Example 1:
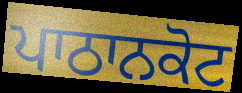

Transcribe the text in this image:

ਪਾਠਾਨਕੋਟ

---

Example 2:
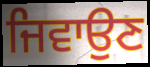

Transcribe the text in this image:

ਜਿਵਾਉਣ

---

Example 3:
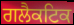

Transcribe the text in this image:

ਗਲੈਕਟਿਕ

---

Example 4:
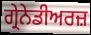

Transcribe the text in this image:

ਗ੍ਰੇਨੇਡੀਅਰਜ਼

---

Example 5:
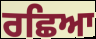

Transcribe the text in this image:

ਰਛਿਆ